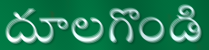
దూలగొండి